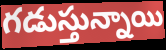
గడుస్తున్నాయి